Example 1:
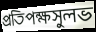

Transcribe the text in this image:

প্রতিপক্ষসুলভ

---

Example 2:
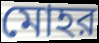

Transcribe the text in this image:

মোহর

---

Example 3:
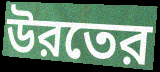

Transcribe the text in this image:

উরতের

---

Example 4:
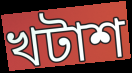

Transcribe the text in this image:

খটাশ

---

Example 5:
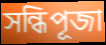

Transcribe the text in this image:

সন্ধিপূজা